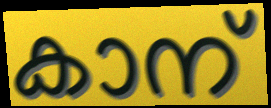
കാന്